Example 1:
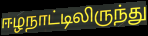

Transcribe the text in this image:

ஈழநாட்டிலிருந்து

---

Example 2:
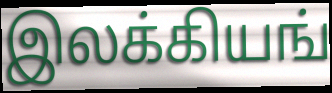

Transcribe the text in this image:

இலக்கியங்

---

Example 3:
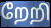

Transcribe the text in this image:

றேறி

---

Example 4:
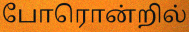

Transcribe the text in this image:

போரொன்றில்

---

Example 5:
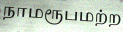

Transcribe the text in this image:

நாமரூபமற்ற